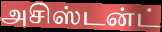
அசிஸ்டன்ட்